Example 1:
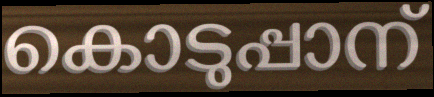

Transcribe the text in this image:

കൊടുപ്പാന്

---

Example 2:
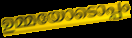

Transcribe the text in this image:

ഉമ്മയോടൊപ്പം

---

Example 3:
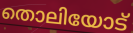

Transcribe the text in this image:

തൊലിയോട്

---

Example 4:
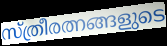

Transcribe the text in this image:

സ്ത്രീരത്നങ്ങളുടെ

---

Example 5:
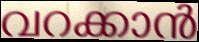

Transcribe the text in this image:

വറക്കാൻ